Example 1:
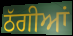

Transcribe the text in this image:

ਠੱਗੀਆਂ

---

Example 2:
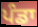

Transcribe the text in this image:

ਪੰਡਾ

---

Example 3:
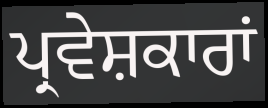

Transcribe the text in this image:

ਪ੍ਰਵੇਸ਼ਕਾਰਾਂ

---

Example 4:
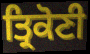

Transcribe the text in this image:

ਤ੍ਰਿਕੋਣੀ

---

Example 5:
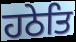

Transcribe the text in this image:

ਹਠੇਤਿ